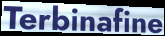
Terbinafine